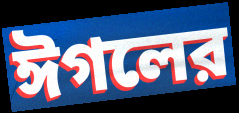
ঈগলের